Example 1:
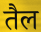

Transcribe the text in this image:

तैल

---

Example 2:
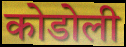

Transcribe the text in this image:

कोडोली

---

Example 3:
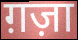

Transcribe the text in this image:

ग़ज़ा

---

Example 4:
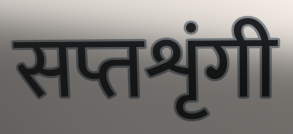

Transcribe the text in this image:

सप्तशृंगी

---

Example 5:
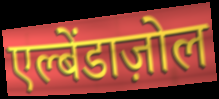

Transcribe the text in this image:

एल्बेंडाज़ोल